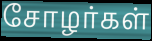
சோழர்கள்